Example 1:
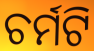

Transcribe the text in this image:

ଚର୍ମଟି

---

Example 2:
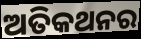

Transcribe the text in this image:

ଅତିକଥନର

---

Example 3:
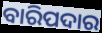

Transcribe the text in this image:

ବାରିପଦାର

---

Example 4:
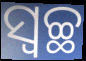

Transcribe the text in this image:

ସ୍ବଚ୍ଛ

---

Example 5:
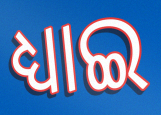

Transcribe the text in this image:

ଧ୍ୟାଇ